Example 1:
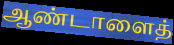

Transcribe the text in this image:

ஆண்டாளைத்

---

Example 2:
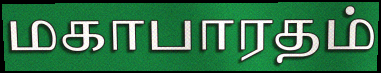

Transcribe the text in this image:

மகாபாரதம்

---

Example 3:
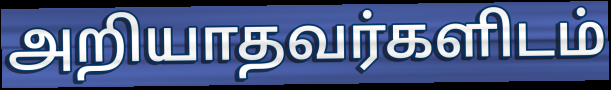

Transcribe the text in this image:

அறியாதவர்களிடம்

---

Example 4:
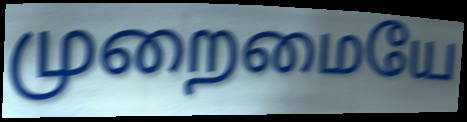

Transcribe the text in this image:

முறைமையே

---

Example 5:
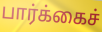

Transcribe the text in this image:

பார்க்கைச்